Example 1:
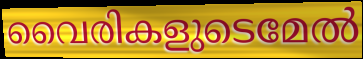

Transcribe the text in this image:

വൈരികളുടെമേൽ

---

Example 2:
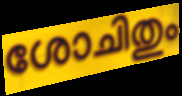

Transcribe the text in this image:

ശോചിതും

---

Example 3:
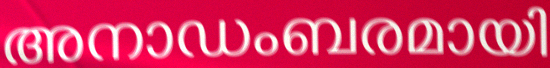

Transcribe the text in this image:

അനാഡംബരമായി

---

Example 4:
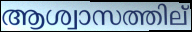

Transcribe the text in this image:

ആശ്വാസത്തില്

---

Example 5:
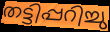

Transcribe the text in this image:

തട്ടിപ്പറിച്ചു